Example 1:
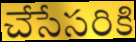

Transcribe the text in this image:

చేసేసరికి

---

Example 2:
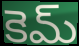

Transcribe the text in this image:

కెమ్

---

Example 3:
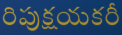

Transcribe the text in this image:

రిపుక్షయకరీ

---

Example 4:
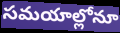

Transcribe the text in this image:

సమయాల్లోనూ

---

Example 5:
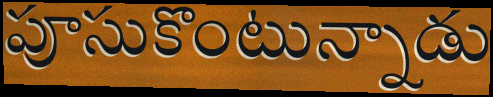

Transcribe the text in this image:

పూసుకొంటున్నాడు